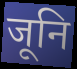
जूनि